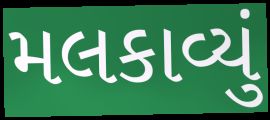
મલકાવ્યું